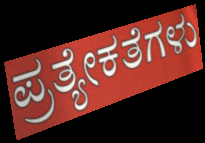
ಪ್ರತ್ಯೇಕತೆಗಳು